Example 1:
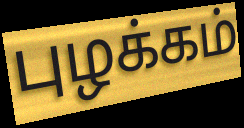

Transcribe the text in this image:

புழக்கம்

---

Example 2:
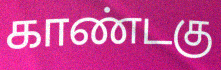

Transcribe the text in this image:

காண்டகு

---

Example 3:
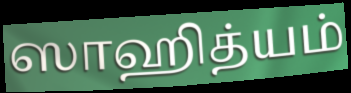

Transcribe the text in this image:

ஸாஹித்யம்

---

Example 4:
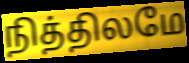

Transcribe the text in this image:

நித்திலமே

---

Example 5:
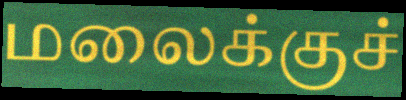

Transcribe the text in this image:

மலைக்குச்